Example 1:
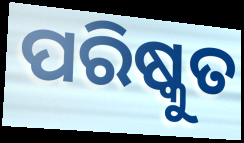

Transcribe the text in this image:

ପରିଷ୍କୁତ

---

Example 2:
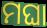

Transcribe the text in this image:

ମଘା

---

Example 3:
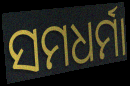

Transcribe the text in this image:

ସମଧର୍ମା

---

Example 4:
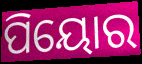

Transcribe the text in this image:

ପିୟୋର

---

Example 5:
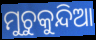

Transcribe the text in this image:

ମୁଚୁକୁନ୍ଦିଆ